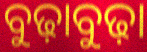
ବୁଢ଼ାବୁଢ଼ା